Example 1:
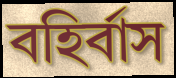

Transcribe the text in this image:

বহির্বাস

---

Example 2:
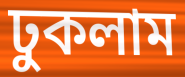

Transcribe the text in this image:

ঢুকলাম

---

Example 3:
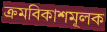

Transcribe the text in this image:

ক্রমবিকাশমূলক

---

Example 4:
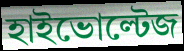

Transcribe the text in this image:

হাইভোল্টেজ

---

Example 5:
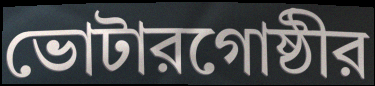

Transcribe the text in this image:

ভোটারগোষ্ঠীর